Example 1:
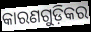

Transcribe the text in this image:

କାରଣଗୁଡ଼ିକର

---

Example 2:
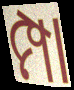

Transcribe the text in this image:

ମ୍ପା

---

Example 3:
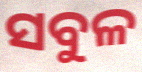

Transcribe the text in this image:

ସବୁଳ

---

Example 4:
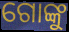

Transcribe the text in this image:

ଗୋଙ୍କୁ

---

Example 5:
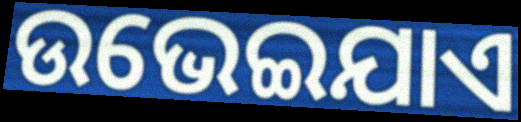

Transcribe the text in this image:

ଉଭେଇଯାଏ